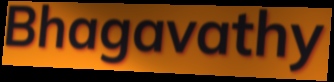
Bhagavathy